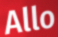
Allo